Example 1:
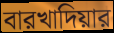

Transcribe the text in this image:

বারখাদিয়ার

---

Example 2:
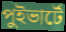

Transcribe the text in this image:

পুইভার্টে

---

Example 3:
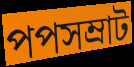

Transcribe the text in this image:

পপসম্রাট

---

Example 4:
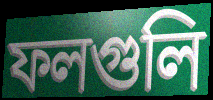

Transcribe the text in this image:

ফলগুলি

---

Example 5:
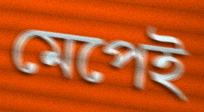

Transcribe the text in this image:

মেপেই